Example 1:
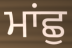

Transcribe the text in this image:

ਮਾਂਛੁ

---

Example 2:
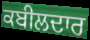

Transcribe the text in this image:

ਕਬੀਲਦਾਰ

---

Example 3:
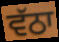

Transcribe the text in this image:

ਵੱਠਾ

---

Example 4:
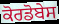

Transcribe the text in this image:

ਕੋਰਡੋਬੇਸ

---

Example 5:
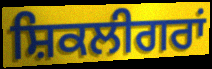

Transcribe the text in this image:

ਸ਼ਿਕਲੀਗਰਾਂ